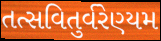
તત્સવિતુર્વરેણ્યમ